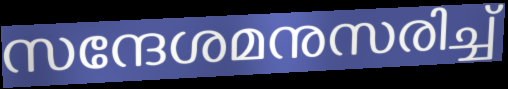
സന്ദേശമനുസരിച്ച്